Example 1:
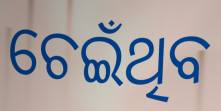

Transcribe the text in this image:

ଚେଇଁଥିବ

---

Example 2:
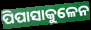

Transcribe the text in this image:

ପିପାସାକୁଳେନ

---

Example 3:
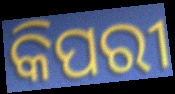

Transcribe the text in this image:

କିପରୀ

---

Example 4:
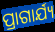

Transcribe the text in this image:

ପ୍ରାଗାର୍ଯ୍ୟ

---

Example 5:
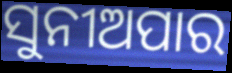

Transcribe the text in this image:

ସୁନୀଅପାର